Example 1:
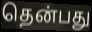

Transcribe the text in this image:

தென்பது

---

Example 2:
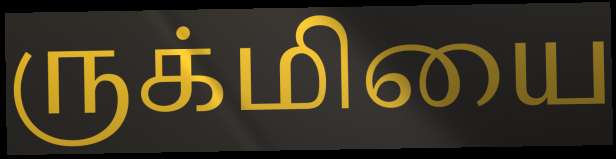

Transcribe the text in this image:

ருக்மியை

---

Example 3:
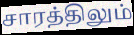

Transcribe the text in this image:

சாரத்திலும்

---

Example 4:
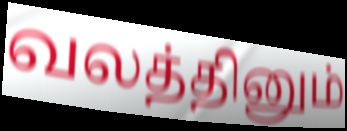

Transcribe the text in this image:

வலத்தினும்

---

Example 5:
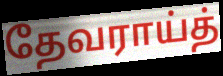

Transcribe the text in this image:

தேவராய்த்